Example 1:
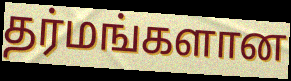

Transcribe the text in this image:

தர்மங்களான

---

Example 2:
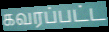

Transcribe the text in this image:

கவரப்பட்ட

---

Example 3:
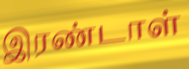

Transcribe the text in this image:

இரண்டாள்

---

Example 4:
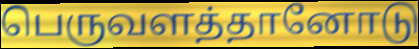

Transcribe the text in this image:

பெருவளத்தானோடு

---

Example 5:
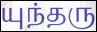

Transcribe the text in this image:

யுந்தரு